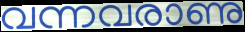
വന്നവരാണു